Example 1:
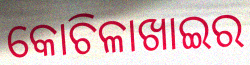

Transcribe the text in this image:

କୋଚିଳାଖାଇର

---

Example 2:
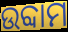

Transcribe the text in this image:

ଉବ୍ଦାମ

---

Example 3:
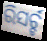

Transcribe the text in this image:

ରିସର୍ଚ୍ଚ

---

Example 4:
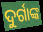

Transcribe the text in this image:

ଦୁର୍ଗାଙ୍କ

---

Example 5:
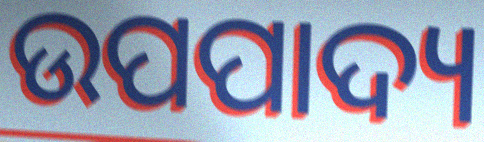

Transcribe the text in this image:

ଉପପାଦ୍ୟ